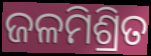
ଜଳମିଶ୍ରିତ